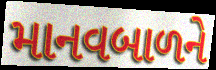
માનવબાળને